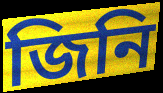
জিনি